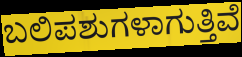
ಬಲಿಪಶುಗಳಾಗುತ್ತಿವೆ